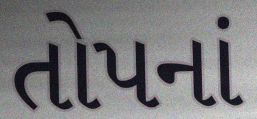
તોપનાં